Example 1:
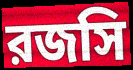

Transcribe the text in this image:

রজসি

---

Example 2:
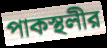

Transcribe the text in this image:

পাকস্থলীর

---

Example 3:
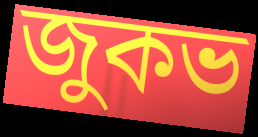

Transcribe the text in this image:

জুকভ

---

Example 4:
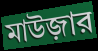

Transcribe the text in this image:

মাউজ়ার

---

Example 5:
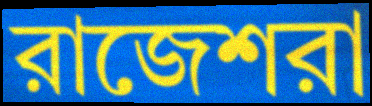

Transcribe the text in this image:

রাজেশরা